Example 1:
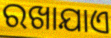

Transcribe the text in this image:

ରଖାଯାଏ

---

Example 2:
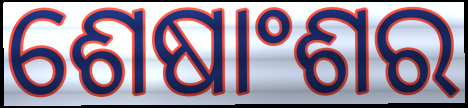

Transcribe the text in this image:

ଶେଷାଂଶର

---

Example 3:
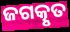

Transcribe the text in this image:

ଜଗତ୍କୃତ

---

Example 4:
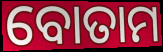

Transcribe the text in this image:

ବୋତାମ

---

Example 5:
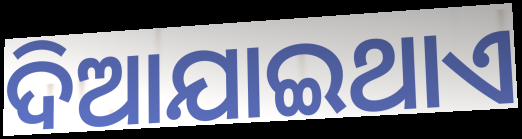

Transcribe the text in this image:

ଦିଆଯାଇଥାଏ